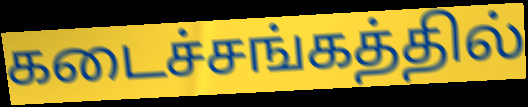
கடைச்சங்கத்தில்